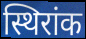
स्थिरांक